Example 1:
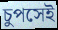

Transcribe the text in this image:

চুপসেই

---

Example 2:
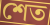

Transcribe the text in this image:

শেত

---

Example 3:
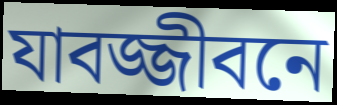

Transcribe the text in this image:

যাবজ্জীবনে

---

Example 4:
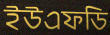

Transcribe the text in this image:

ইউএফডি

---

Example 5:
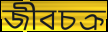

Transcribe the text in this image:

জীবচক্র